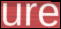
ure